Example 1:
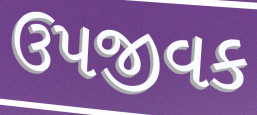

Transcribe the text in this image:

ઉપજીવક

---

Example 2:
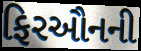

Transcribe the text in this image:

ફિરઔનની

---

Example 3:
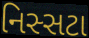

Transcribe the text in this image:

નિસ્સટા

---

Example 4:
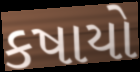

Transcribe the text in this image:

કષાયો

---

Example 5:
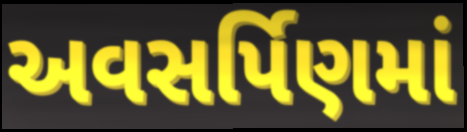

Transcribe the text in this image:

અવસર્પિણમાં